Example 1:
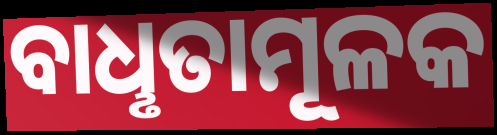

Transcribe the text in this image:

ବାଧୢତାମୂଳକ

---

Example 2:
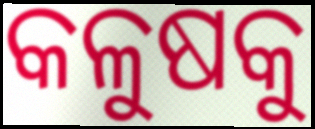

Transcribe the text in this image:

କଳୁଷକୁ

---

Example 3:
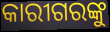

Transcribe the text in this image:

କାରୀଗରଙ୍କୁ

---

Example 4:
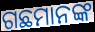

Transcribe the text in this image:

ଗଛମାନଙ୍କ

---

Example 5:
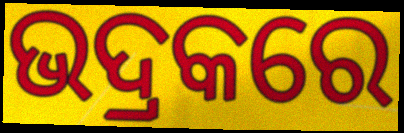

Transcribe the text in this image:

ଭଦ୍ରକରେ